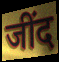
जींद